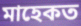
মাহেকত